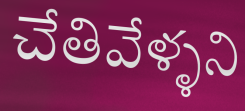
చేతివేళ్ళని